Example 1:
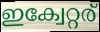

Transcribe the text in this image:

ഇക്വേറ്റര്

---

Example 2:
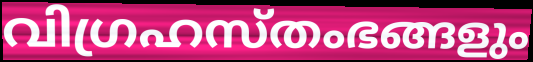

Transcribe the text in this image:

വിഗ്രഹസ്തംഭങ്ങളും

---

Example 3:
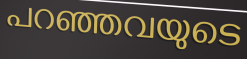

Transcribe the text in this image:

പറഞ്ഞവയുടെ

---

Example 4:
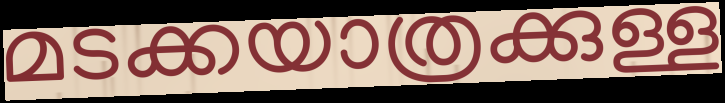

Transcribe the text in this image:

മടക്കയാത്രക്കുള്ള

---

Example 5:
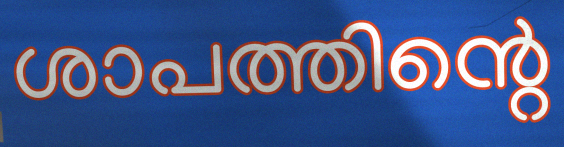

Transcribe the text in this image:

ശാപത്തിന്റെ